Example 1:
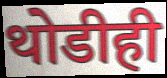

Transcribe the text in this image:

थोडीही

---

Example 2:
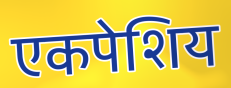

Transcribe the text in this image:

एकपेशिय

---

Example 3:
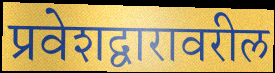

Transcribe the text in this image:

प्रवेशद्वारावरील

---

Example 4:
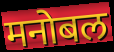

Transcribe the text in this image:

मनोबल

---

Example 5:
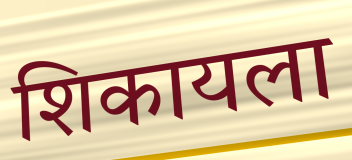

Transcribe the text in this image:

शिकायला